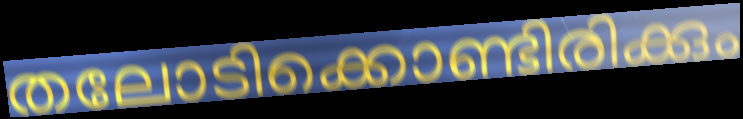
തലോടിക്കൊണ്ടിരിക്കും